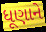
ધૂણાને